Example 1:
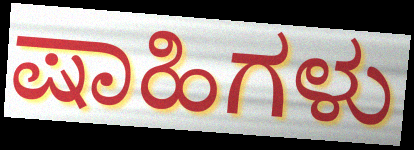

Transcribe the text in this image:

ಷಾಹಿಗಳು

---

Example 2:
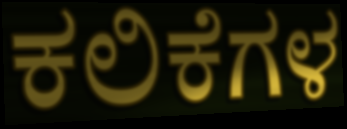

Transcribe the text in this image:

ಕಲಿಕೆಗಳ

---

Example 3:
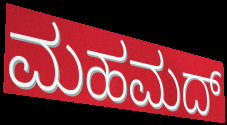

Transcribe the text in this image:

ಮಹಮದ್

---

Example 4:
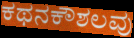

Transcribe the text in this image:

ಕಥನಕೌಶಲವು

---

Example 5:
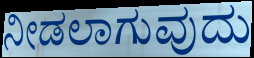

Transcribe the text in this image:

ನೀಡಲಾಗುವುದು